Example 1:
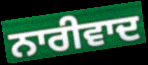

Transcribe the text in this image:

ਨਾਰੀਵਾਦ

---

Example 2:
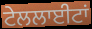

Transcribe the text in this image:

ਟੇਲਲਾਈਟਾਂ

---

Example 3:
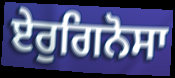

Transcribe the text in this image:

ਏਰੁਗਿਨੋਸਾ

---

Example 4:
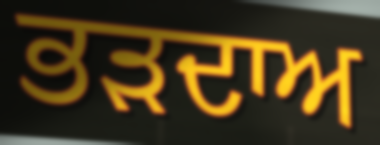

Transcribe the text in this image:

ਭੜਦਾਅ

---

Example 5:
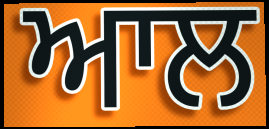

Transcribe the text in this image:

ਆਲ